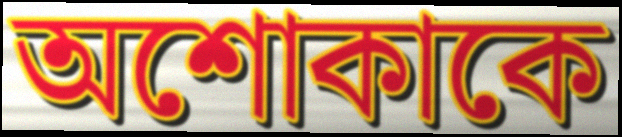
অশোকাকে